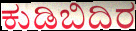
ಕುಡಿಬಿದಿರ